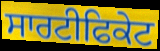
ਸਾਰਟੀਫਿਕੇਟ